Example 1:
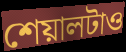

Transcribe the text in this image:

শেয়ালটাও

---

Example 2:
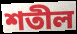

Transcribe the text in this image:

শতীল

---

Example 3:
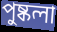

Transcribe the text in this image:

পুষ্কলা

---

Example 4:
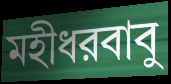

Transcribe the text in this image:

মহীধরবাবু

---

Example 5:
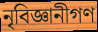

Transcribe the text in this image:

নৃবিজ্ঞানীগণ